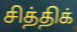
சித்திக்